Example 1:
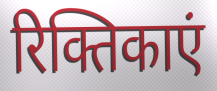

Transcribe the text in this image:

रिक्तिकाएं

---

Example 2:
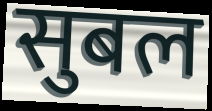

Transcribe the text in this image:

सुबल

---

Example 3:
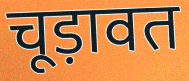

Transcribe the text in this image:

चूड़ावत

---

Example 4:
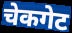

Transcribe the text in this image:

चेकगेट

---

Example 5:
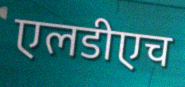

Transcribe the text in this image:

एलडीएच